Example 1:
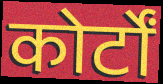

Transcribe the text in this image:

कोर्टों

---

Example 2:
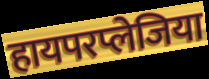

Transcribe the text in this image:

हायपरप्लेजिया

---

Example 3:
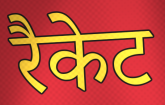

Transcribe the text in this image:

रैकेट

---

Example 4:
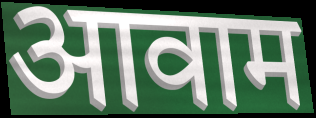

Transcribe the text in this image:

आवाम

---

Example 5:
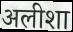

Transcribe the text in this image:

अलीशा